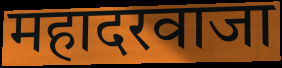
महादरवाजा